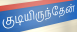
குடியிருந்தேன்